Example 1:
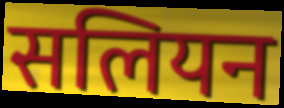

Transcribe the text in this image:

सलियन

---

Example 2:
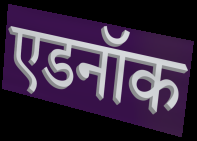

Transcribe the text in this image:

एडनॉक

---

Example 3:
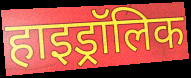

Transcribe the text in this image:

हाइड्रॉलिक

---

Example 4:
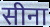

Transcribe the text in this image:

सीना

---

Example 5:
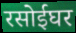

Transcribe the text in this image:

रसोईघर